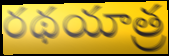
రథయాత్ర